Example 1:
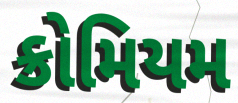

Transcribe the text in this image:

ક્રોમિયમ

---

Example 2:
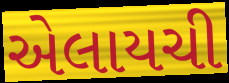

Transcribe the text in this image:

એલાયચી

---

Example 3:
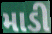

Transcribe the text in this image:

માડી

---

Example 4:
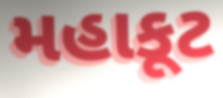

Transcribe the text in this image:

મહાકૂટ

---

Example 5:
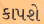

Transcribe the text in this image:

કાપશે